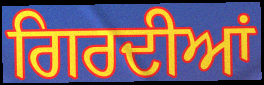
ਗਿਰਦੀਆਂ